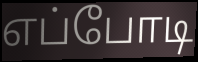
எப்போடி